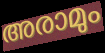
അരാമും